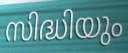
സിദ്ധിയും